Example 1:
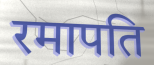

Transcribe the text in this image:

रमापति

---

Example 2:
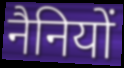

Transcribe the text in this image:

नैनियों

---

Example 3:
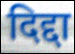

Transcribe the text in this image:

दिद्दा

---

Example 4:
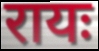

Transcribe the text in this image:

रायः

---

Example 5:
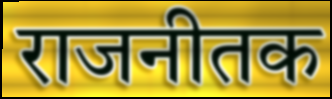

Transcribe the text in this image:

राजनीतक